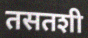
तसतशी